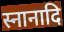
स्नानादि